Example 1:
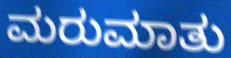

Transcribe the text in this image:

ಮರುಮಾತು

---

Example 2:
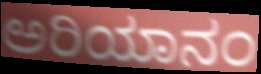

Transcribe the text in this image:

ಅರಿಯಾನಂ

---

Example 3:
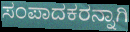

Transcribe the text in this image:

ಸಂಪಾದಕರನ್ನಾಗಿ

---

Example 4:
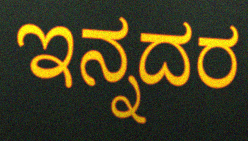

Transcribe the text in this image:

ಇನ್ನದರ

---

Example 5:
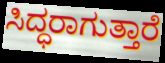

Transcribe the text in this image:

ಸಿದ್ಧರಾಗುತ್ತಾರೆ